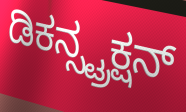
ಡಿಕನ್ಸ್ಟ್ರಕ್ಷನ್